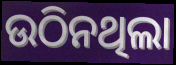
ଉଠିନଥିଲା